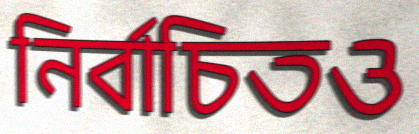
নির্বাচিতও